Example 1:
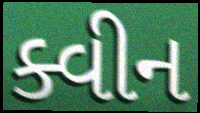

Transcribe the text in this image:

ક્વીન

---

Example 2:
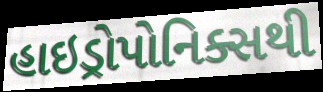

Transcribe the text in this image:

હાઇડ્રોપોનિક્સથી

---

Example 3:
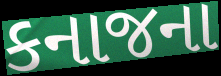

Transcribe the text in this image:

કનાજના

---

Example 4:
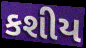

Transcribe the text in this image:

કશીય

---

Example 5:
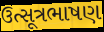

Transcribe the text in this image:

ઉત્સૂત્રભાષણ